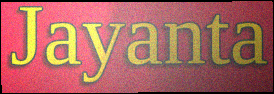
Jayanta